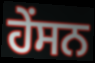
ਹੇਂਸਨ